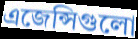
এজেন্সিগুলো